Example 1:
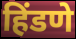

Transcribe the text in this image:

हिंडणे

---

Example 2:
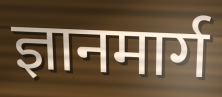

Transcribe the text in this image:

ज्ञानमार्ग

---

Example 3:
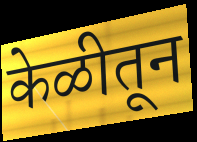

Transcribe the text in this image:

केळीतून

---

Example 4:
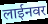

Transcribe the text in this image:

लाईनवर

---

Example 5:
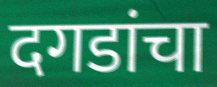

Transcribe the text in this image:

दगडांचा